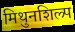
मिथुनशिल्प